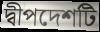
দ্বীপদেশটি